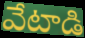
వేటాడి